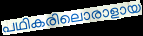
പഥികരിലൊരാളായ